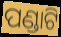
ପଣ୍ଡାଟି